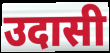
उदासी